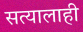
सत्यालाही